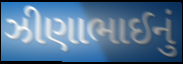
ઝીણાભાઈનું